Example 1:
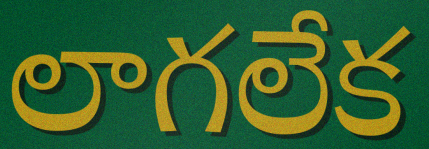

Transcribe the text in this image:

లాగలేక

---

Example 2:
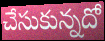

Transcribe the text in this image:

చేసుకున్నదో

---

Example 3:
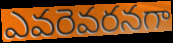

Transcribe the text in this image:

ఎవరెవరనగా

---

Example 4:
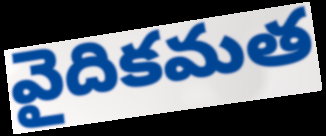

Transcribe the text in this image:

వైదికమత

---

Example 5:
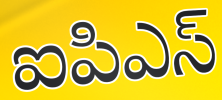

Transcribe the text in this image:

ఐపిఎస్